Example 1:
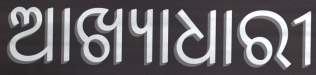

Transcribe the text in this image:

ଆଖ୍ୟାଧାରୀ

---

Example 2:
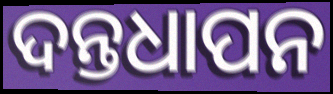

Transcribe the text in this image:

ଦନ୍ତଧାପନ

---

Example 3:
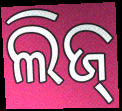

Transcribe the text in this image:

ଲିଜ୍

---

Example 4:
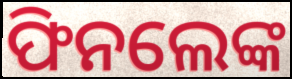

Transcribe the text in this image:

ଫିନଲେଙ୍କ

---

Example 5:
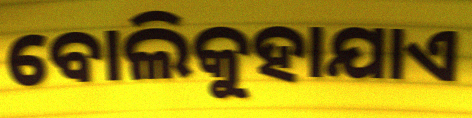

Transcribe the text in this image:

ବୋଲିକୁହାଯାଏ